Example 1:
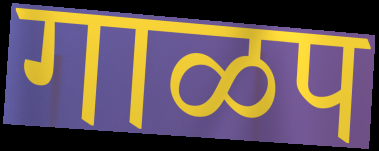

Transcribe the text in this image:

गाळप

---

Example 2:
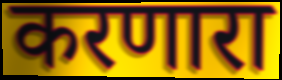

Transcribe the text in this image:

करणारा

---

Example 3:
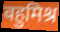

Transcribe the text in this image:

बहुमिश्र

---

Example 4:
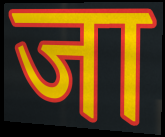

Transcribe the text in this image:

जा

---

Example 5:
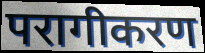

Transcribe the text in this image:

परागीकरण